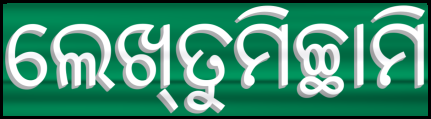
ଲେଖ୍‌ତୁମିଚ୍ଛାମି